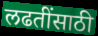
लढतींसाठी